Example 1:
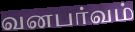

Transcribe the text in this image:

வனபர்வம்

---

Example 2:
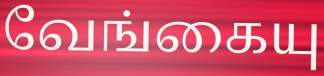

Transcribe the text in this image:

வேங்கையு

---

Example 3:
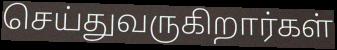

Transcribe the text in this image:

செய்துவருகிறார்கள்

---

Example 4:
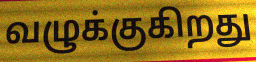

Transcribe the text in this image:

வழுக்குகிறது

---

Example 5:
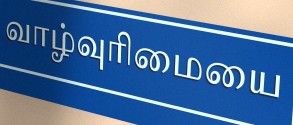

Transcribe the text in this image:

வாழ்வுரிமையை